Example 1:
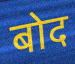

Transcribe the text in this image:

बोद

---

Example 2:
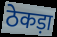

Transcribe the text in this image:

ठेकड़ा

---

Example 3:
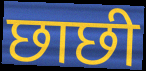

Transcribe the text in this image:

छाछी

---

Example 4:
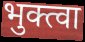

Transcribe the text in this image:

भुक्त्वा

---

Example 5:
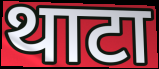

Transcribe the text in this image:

थाटा